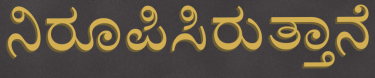
ನಿರೂಪಿಸಿರುತ್ತಾನೆ